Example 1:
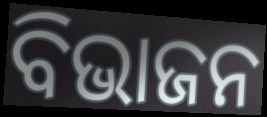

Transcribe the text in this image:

ବିଭାଜନ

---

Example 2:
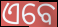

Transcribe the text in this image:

ଏବେ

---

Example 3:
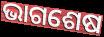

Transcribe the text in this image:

ଭାଗଶେଷ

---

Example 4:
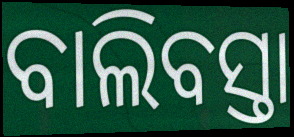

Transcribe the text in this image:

ବାଲିବସ୍ତା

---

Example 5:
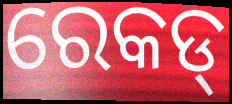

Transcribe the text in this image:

ରେକଡ୍